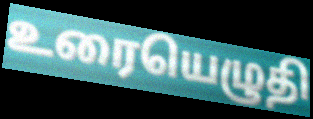
உரையெழுதி